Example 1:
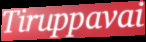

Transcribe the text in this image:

Tiruppavai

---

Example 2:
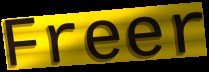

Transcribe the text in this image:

Freer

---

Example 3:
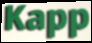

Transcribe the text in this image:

Kapp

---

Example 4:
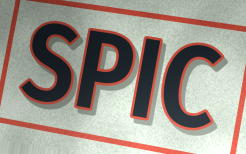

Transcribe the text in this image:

SPIC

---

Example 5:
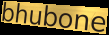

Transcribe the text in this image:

bhubone